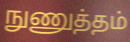
நுணுத்தம்